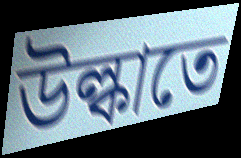
উল্কাতে